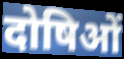
दोषिओं